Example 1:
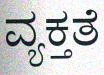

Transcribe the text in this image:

ವ್ಯಕ್ತತೆ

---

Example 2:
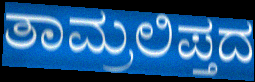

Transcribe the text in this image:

ತಾಮ್ರಲಿಪ್ತದ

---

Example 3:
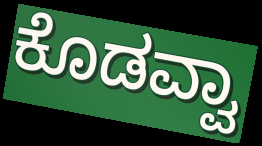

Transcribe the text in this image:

ಕೊಡವ್ವಾ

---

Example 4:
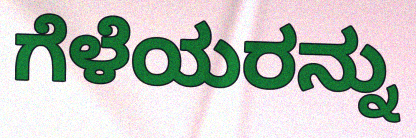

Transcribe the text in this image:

ಗೆಳೆಯರನ್ನು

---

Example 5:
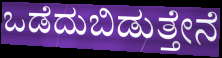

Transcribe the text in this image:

ಒಡೆದುಬಿಡುತ್ತೇನೆ